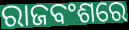
ରାଜବଂଶରେ